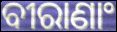
ବୀରାଣାଂ